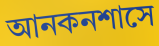
আনকনশাসে